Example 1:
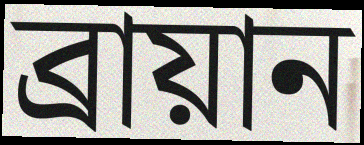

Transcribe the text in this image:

ব্রায়ান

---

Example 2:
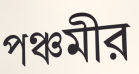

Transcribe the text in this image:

পঞ্চমীর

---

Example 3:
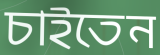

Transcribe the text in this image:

চাইতেন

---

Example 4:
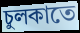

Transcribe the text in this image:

চুলকাতে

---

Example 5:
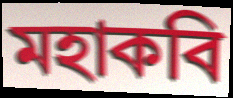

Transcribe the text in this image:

মহাকবি